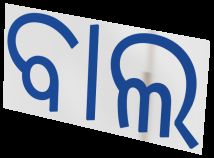
ବାଲ